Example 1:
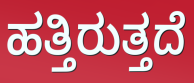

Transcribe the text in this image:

ಹತ್ತಿರುತ್ತದೆ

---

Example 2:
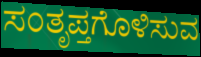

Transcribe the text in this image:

ಸಂತೃಪ್ತಗೊಳಿಸುವ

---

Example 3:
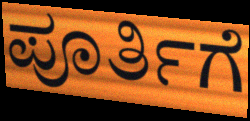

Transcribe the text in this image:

ಪೂರ್ತಿಗೆ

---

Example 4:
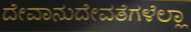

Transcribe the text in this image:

ದೇವಾನುದೇವತೆಗಳೆಲ್ಲಾ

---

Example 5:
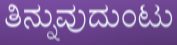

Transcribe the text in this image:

ತಿನ್ನುವುದುಂಟು